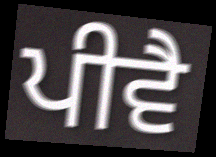
ਪੀਵੈ